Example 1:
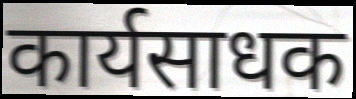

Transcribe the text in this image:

कार्यसाधक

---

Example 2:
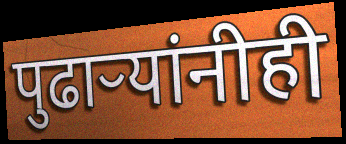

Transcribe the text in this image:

पुढाऱ्यांनीही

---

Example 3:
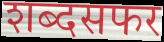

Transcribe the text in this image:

शब्दसफर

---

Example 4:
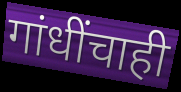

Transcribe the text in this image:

गांधींचाही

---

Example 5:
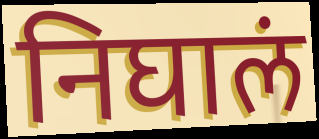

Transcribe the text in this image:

निघालं